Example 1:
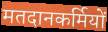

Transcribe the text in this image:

मतदानकर्मियों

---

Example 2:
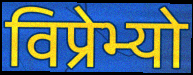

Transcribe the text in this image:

विप्रेभ्यो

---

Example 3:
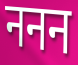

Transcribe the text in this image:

ननन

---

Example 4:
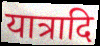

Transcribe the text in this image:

यात्रादि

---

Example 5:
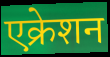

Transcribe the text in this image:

एक्रेशन